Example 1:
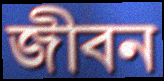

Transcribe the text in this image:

জীবন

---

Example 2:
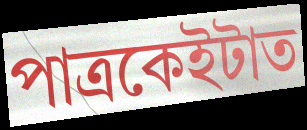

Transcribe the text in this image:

পাত্ৰকেইটাত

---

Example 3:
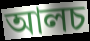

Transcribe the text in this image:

আলচ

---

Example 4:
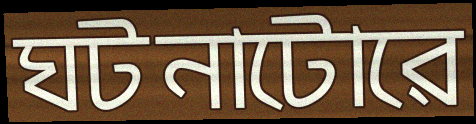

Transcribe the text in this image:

ঘটনাটোৱে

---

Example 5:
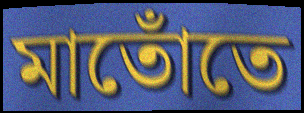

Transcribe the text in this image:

মাতোঁতে